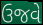
ઉજવે